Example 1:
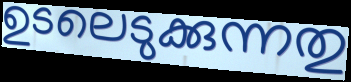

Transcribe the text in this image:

ഉടലെടുക്കുന്നതു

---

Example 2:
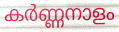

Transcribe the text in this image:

കർണ്ണനാളം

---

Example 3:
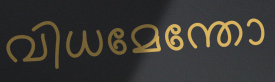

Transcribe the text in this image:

വിധമേന്തോ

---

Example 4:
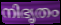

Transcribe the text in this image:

നിഭൃതം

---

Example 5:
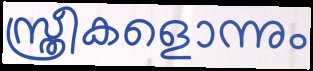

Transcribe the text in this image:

സ്ത്രീകളൊന്നും